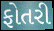
ફોતરી